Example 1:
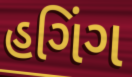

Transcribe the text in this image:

હગિંગ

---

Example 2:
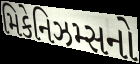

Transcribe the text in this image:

મિકેનિઝમ્સનો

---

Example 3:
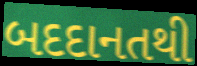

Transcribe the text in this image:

બદદાનતથી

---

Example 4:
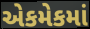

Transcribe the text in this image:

એકમેકમાં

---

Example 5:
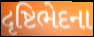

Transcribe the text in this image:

દૃષ્ટિભેદના